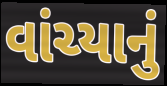
વાંચ્યાનું